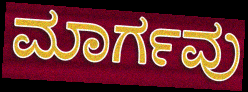
ಮಾರ್ಗವು